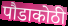
पौडाकोठी